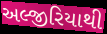
અલ્જીરિયાથી